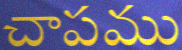
చాపము